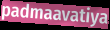
padmaavatiya